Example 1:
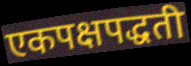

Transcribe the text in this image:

एकपक्षपद्धती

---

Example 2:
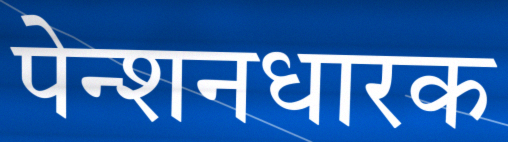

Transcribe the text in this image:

पेन्शनधारक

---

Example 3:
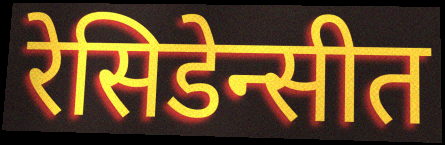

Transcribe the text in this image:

रेसिडेन्सीत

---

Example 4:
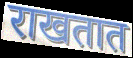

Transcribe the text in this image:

राखतात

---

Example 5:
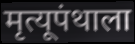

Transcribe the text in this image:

मृत्यूपंथाला